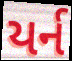
યર્ન